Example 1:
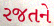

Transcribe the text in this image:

રજતને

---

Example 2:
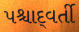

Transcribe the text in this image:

પશ્ચાદ્‌વર્તી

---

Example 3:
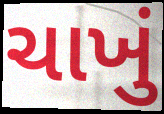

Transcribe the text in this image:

ચાખું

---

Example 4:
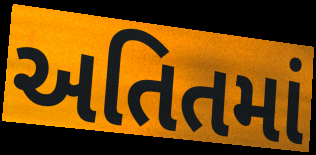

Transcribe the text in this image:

અતિતમાં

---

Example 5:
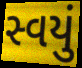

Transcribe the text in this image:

સ્વયું